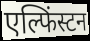
एल्फिंस्टन